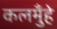
कलमुँहे